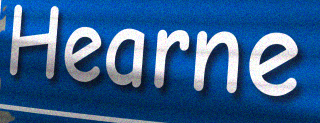
Hearne